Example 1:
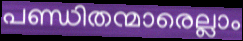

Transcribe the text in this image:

പണ്ഡിതന്മാരെല്ലാം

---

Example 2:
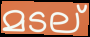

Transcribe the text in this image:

മടല്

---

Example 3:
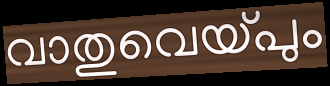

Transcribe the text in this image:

വാതുവെയ്പും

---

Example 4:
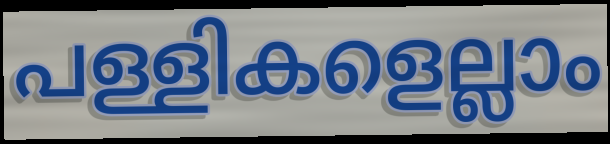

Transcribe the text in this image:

പള്ളികളെല്ലാം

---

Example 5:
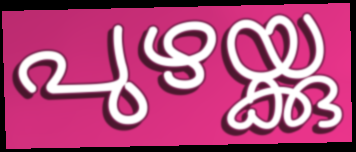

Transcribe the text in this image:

പുഴയ്ക്കു